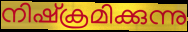
നിഷ്ക്രമിക്കുന്നു